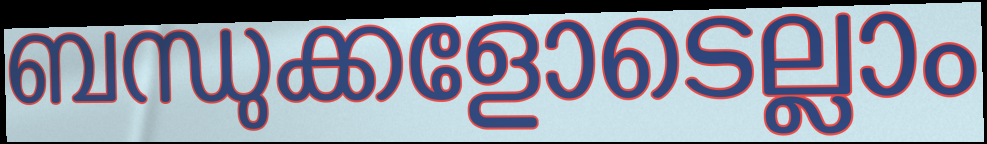
ബന്ധുക്കളോടെല്ലാം